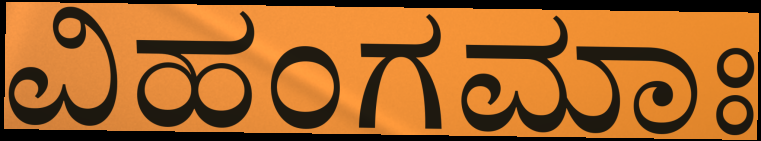
ವಿಹಂಗಮಾಃ